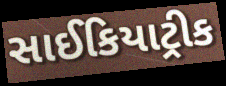
સાઈકિયાટ્રીક